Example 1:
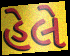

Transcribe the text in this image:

હેલે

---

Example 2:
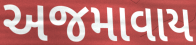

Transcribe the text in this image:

અજમાવાય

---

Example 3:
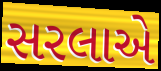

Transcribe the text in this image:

સરલાએ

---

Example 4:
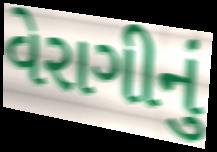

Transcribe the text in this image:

વેરાગીનું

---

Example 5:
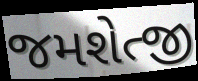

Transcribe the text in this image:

જમશેત્જી